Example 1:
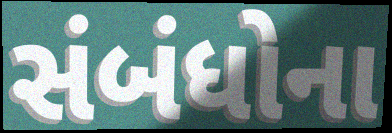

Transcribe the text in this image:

સંબંધોના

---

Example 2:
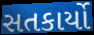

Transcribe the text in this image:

સતકાર્યો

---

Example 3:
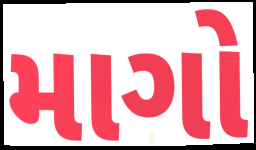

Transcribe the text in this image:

માગો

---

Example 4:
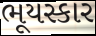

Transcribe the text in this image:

ભૂયસ્કાર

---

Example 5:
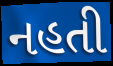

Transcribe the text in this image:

નહતી